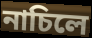
নাচিলে